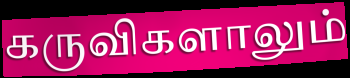
கருவிகளாலும்